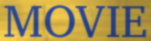
MOVIE